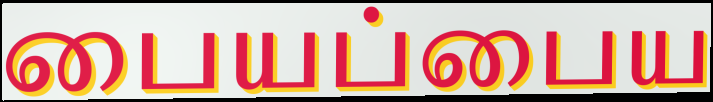
பையப்பைய